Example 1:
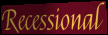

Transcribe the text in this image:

Recessional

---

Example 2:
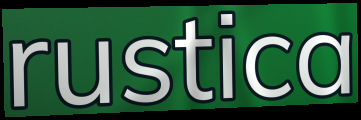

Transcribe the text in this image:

rustica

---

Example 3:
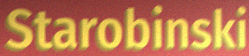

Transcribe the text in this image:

Starobinski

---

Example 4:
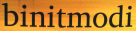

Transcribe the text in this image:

binitmodi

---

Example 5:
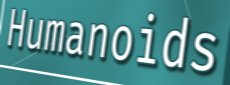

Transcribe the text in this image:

Humanoids